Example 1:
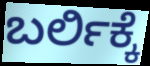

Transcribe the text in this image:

ಬರ್ಲಿಕ್ಕೆ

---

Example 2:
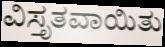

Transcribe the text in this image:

ವಿಸ್ತೃತವಾಯಿತು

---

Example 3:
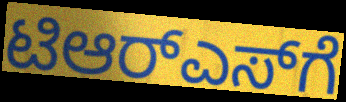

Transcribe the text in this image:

ಟಿಆರ್‌ಎಸ್‌ಗೆ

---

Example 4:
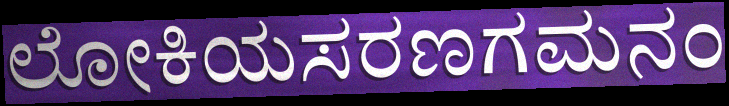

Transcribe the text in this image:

ಲೋಕಿಯಸರಣಗಮನಂ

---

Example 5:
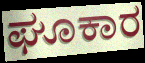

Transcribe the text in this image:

ಘೂಕಾರ